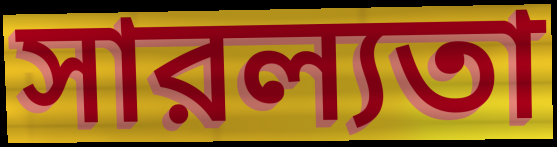
সারল্যতা